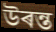
উৰন্ত